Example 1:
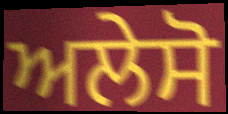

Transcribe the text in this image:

ਅਲੇਸੋ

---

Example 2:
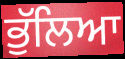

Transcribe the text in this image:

ਭੁੱਲਿਆ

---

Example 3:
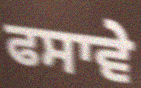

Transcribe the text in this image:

ਫਸਾਵੇ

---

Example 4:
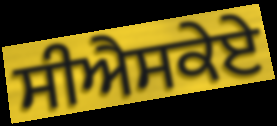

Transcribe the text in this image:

ਸੀਐਸਕੇਏ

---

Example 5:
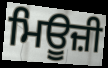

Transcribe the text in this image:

ਮਿਊਜ਼ੀ